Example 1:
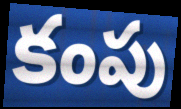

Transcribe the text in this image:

కంపు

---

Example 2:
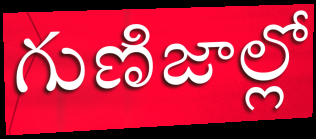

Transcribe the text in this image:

గుణిజాల్లో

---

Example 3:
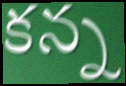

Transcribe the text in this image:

కన్న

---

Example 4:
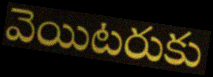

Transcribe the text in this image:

వెయిటరుకు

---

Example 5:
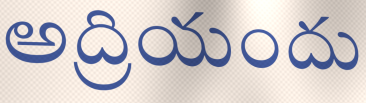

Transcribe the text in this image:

అద్రియందు